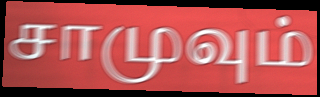
சாமுவும்